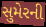
સુમેરની